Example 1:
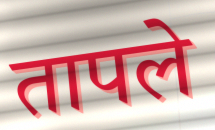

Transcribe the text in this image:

तापले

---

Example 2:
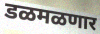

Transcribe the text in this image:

डळमळणार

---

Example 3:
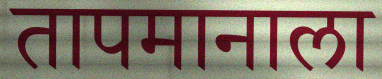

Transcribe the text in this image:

तापमानाला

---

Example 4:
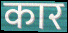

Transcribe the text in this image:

कार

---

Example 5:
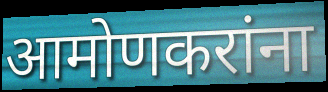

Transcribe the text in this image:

आमोणकरांना